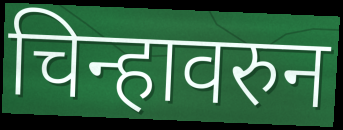
चिन्हावरुन